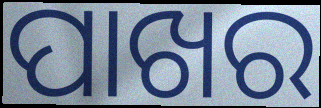
ପାଖର